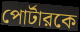
পোর্টারকে